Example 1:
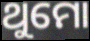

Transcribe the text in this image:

ଥୁମୋ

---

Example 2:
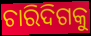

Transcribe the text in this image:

ଚାରିଦିଗକୁ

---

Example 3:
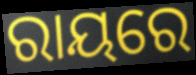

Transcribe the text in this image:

ରାୟରେ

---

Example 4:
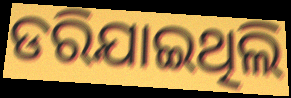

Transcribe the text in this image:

ଡରିଯାଇଥିଲି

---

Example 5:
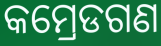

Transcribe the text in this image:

କମ୍ରେଡଗଣ